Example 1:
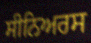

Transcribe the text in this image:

ਸੀਨਿਅਰਸ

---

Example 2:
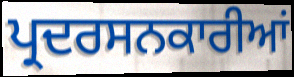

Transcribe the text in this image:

ਪ੍ਰਦਰਸਨਕਾਰੀਆਂ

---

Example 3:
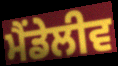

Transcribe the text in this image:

ਮੈਂਡੇਲੀਵ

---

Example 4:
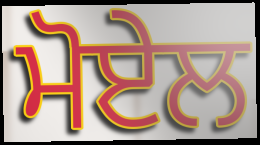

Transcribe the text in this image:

ਮੋਏਲ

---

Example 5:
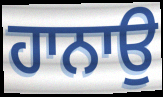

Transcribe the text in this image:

ਹਾਨਾਉ